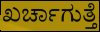
ಖರ್ಚಾಗುತ್ತೆ